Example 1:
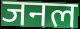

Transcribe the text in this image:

जनल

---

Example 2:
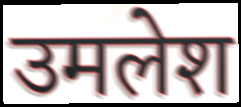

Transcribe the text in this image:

उमलेश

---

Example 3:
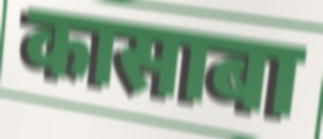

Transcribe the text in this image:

कासाबा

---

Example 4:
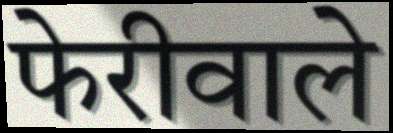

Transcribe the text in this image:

फेरीवाले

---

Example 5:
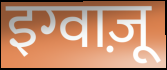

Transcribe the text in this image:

इग्वाज़ू